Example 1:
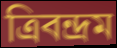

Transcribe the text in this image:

ত্রিবন্দ্রম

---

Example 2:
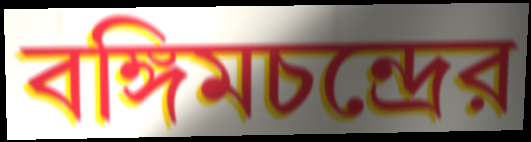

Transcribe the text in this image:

বঙ্গিমচন্দ্রের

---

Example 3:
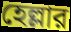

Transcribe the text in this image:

হেল্লার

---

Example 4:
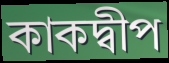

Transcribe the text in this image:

কাকদ্বীপ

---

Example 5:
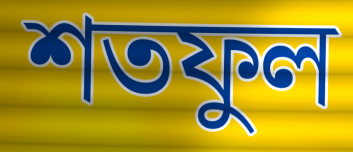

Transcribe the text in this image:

শতফুল